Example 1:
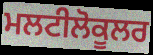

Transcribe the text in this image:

ਮਲਟੀਲੋਕੂਲਰ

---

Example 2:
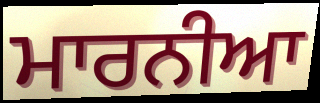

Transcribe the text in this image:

ਮਾਰਨੀਆ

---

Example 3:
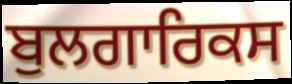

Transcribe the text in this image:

ਬੁਲਗਾਰਿਕਸ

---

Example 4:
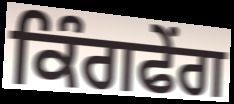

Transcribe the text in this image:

ਕਿੰਗਫੇਂਗ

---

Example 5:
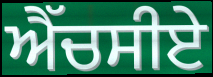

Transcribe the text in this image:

ਐੱਚਸੀਏ